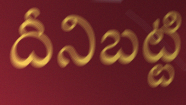
దీనిబట్టి